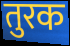
तुरक